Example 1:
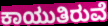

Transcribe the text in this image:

ಕಾಯುತಿರುವೆ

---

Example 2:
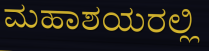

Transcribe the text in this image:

ಮಹಾಶಯರಲ್ಲಿ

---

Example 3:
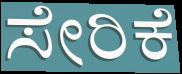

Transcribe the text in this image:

ಸೇರಿಕೆ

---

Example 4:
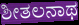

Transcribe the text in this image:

ಶೀತಲನಾಥ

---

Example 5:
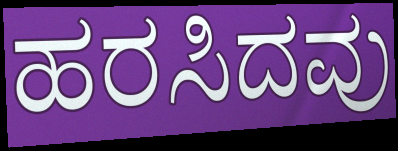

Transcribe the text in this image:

ಹರಸಿದವು